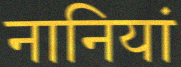
नानियां